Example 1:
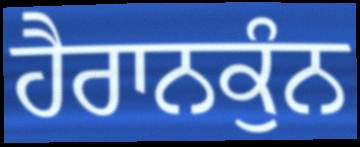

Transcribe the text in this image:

ਹੈਰਾਨਕੁੰਨ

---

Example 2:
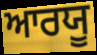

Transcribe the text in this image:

ਆਰਯੂ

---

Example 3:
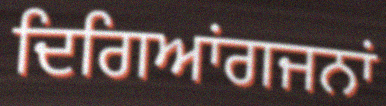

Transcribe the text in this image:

ਦਿਗਿਆਂਗਜਨਾਂ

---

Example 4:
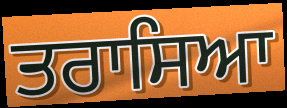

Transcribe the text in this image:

ਤਰਾਸਿਆ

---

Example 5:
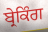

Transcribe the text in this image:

ਬ੍ਰੇਕਿੰਗ